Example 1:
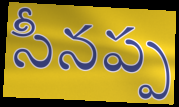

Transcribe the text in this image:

సీనప్ప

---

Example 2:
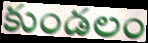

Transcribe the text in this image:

కుండలం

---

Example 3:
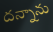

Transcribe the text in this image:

దన్నాను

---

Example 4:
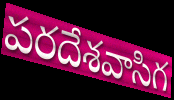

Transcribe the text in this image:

పరదేశవాసిగ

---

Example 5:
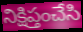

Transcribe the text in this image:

నిక్షిప్తంచేసి